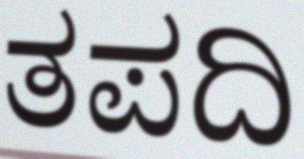
ತಪದಿ